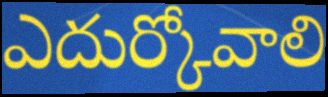
ఎదుర్కోవాలి